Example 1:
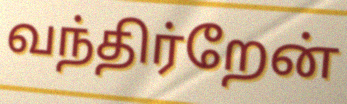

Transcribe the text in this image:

வந்திர்றேன்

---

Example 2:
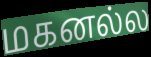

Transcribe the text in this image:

மகனல்ல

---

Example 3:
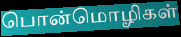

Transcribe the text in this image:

பொன்மொழிகள்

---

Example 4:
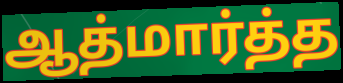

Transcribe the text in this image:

ஆத்மார்த்த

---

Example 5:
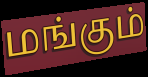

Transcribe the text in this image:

மங்கும்